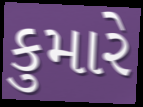
કુમારે